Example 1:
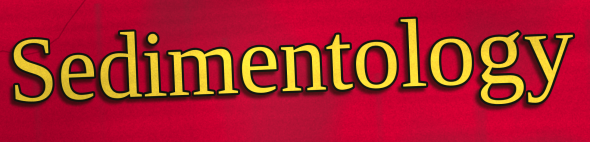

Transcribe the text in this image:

Sedimentology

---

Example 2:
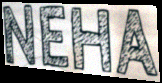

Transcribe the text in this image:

NEHA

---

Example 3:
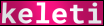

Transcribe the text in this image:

keleti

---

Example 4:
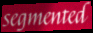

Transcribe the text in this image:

segmented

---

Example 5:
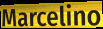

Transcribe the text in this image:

Marcelino